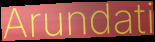
Arundati